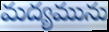
మద్యమును